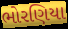
ભોરણિયા